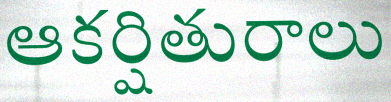
ఆకర్షితురాలు